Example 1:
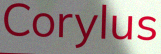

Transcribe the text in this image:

Corylus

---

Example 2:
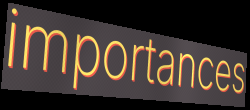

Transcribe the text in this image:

importances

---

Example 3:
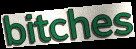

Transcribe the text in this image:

bitches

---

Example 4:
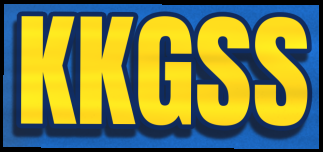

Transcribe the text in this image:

KKGSS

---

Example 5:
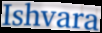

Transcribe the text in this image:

Ishvara